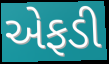
એફડી